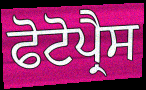
ਫੋਟੋਪ੍ਰੈਸ